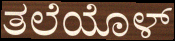
ತಲೆಯೊಳ್